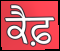
ਕੈਫ਼